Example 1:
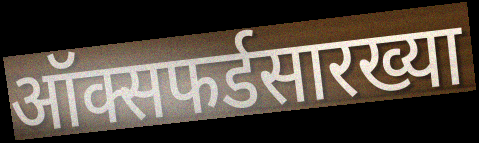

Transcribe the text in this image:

ऑक्सफर्डसारख्या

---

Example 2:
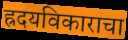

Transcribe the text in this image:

ह्रदयविकाराचा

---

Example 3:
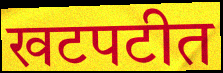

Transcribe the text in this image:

खटपटीत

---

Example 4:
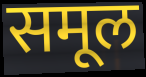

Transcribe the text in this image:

समूल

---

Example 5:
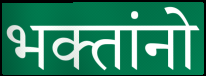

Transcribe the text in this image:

भक्तांनो